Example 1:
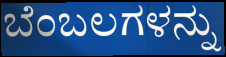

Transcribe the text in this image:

ಬೆಂಬಲಗಳನ್ನು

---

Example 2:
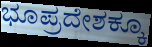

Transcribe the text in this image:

ಭೂಪ್ರದೇಶಕ್ಕೂ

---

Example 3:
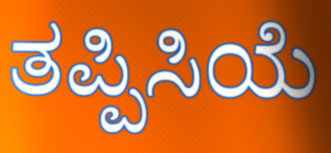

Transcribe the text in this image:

ತಪ್ಪಿಸಿಯೆ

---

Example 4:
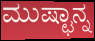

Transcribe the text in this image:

ಮುಷ್ಟಾನ್ನ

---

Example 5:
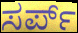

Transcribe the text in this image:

ಸರ್ಪ್